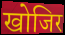
खोजिर